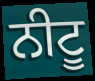
ਨੀਟੂ